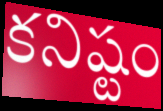
కనిష్టం